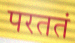
परततं